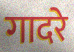
गादरे